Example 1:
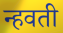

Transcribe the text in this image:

न्हवती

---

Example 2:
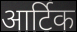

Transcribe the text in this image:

आर्टिक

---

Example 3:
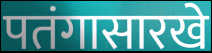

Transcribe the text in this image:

पतंगासारखे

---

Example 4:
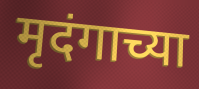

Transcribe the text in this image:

मृदंगाच्या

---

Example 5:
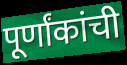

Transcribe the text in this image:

पूर्णांकांची